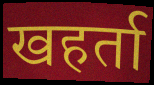
खहर्ता